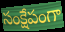
సంక్షేపంగా